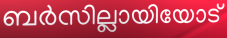
ബർസില്ലായിയോട്